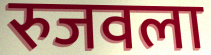
रुजवला